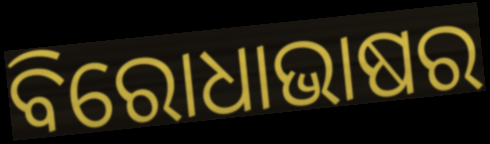
ବିରୋଧାଭାଷର